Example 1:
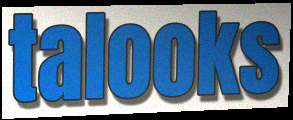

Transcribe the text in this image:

talooks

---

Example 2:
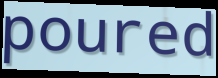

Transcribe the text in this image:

poured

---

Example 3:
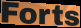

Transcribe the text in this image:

Forts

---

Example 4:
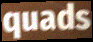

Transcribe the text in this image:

quads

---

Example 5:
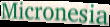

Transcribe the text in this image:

Micronesia